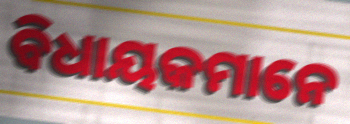
ବିଧାୟକମାନେ